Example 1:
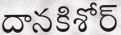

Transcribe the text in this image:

దానకిశోర్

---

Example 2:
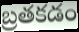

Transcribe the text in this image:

బ్రతకడం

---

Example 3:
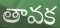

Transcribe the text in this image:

తావక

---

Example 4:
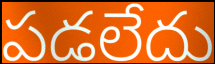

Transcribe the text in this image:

పడలేదు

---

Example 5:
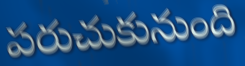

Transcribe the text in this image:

పరుచుకునుంది